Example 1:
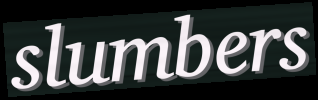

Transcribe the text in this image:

slumbers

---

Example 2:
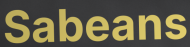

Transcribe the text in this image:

Sabeans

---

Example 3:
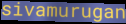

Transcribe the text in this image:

sivamurugan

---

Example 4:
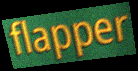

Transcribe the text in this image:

flapper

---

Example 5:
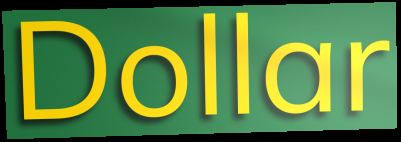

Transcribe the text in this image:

Dollar